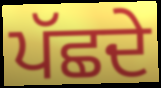
ਪੱਛਦੇ